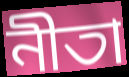
নীতা